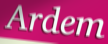
Ardem